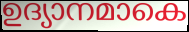
ഉദ്യാനമാകെ